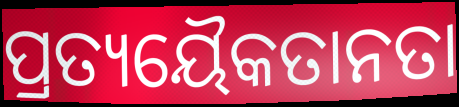
ପ୍ରତ୍ୟୟୈକତାନତା